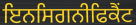
ਇਨਸਿਗਨੀਫਿਕੈਂਟ